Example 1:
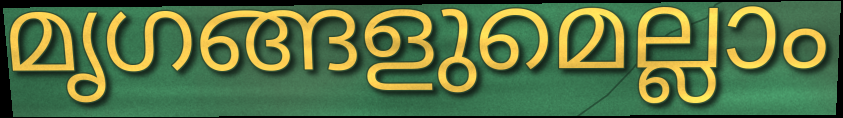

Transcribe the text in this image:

മൃഗങ്ങളുമെല്ലാം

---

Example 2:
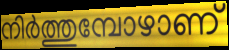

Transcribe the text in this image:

നിർത്തുമ്പോഴാണ്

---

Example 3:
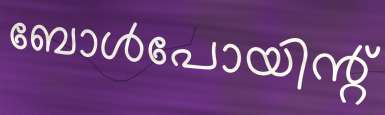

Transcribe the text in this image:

ബോൾപോയിന്റ്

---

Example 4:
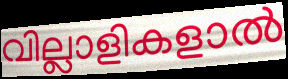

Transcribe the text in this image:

വില്ലാളികളാൽ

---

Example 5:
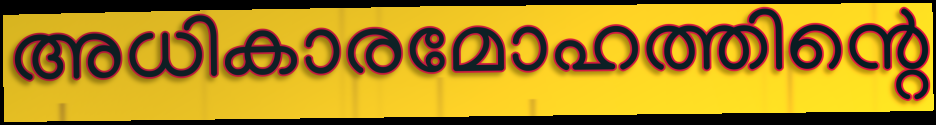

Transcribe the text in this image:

അധികാരമോഹത്തിന്റെ